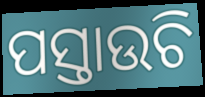
ପସ୍ତାଉଚି